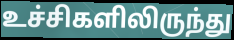
உச்சிகளிலிருந்து